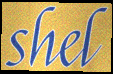
shel